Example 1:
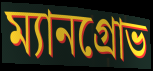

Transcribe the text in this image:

ম্যানগ্রোভ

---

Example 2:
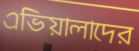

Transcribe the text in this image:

এভিয়ালাদের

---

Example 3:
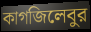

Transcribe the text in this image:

কাগজিলেবুর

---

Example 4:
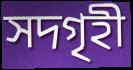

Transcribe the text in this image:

সদগৃহী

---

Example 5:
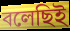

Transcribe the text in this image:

বলেছিই